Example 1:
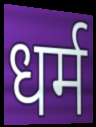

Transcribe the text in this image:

धर्म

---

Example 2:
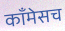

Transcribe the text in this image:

कॉंमेसच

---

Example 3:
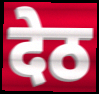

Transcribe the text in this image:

देठ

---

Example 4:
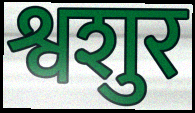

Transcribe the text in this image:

श्वशुर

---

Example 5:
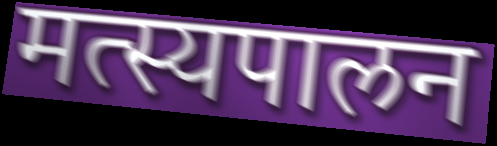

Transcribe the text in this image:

मत्स्यपालन